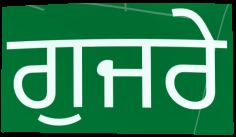
ਗੁਜਰੇ